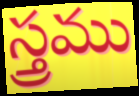
స్త్రము